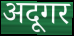
अदूगर